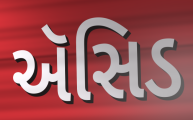
ઍસિડ